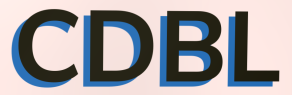
CDBL